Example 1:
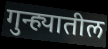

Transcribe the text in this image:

गुन्ह्यातील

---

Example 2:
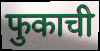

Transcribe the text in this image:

फुकाची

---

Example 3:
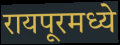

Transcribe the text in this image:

रायपूरमध्ये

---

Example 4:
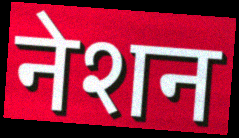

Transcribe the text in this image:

नेशन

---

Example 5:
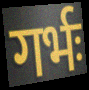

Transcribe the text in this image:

गर्भः